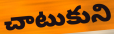
చాటుకుని